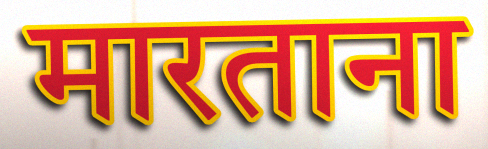
मारताना